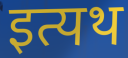
इत्यथ